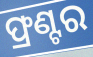
ଫ୍ରଣ୍ଟର